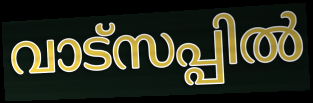
വാട്സപ്പിൽ